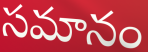
సమానం